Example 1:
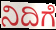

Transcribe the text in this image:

ನಿದಿಗೆ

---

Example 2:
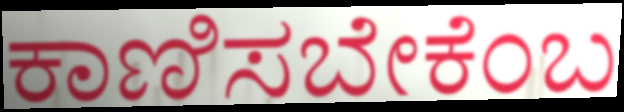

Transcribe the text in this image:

ಕಾಣಿಸಬೇಕೆಂಬ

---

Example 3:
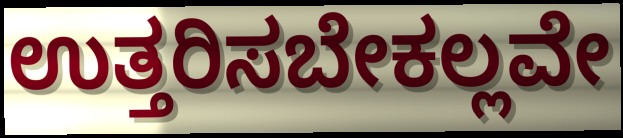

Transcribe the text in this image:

ಉತ್ತರಿಸಬೇಕಲ್ಲವೇ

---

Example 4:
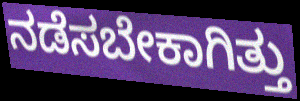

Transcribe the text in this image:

ನಡೆಸಬೇಕಾಗಿತ್ತು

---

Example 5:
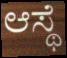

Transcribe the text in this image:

ಆಸ್ಥೆ